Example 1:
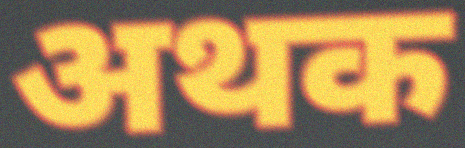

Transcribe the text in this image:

अथक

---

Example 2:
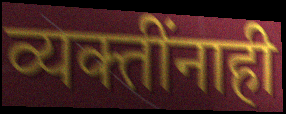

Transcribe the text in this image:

व्यक्तींनाही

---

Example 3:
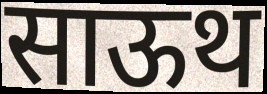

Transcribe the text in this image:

साऊथ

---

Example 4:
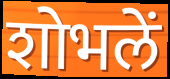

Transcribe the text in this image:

शोभलें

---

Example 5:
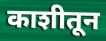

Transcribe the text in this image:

काशीतून